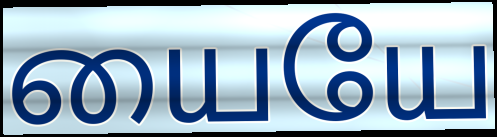
யையே